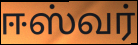
ஈஸ்வர்